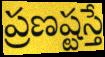
ప్రణష్టస్తే